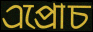
এপ্রোচ